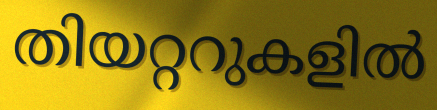
തിയറ്ററുകളിൽ